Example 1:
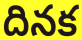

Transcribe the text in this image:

దినక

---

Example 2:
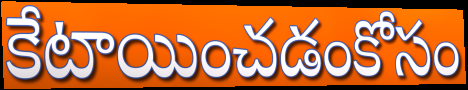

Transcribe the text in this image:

కేటాయించడంకోసం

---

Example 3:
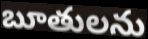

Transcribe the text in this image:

బూతులను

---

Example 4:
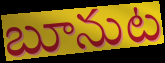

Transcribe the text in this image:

బూనుట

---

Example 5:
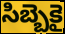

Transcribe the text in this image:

సిబ్బెకై